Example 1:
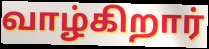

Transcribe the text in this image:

வாழ்கிறார்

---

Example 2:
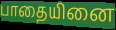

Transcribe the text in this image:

பாதையினை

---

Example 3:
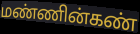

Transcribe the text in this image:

மண்ணின்கண்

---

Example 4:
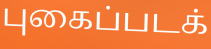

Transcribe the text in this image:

புகைப்படக்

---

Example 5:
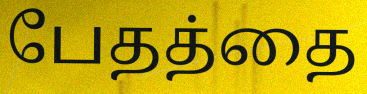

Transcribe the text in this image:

பேதத்தை